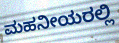
ಮಹನೀಯರಲ್ಲಿ